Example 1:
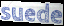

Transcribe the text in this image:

suede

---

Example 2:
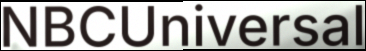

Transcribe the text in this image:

NBCUniversal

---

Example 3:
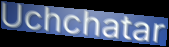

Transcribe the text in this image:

Uchchatar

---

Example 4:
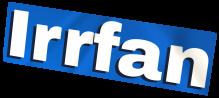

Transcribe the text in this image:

Irrfan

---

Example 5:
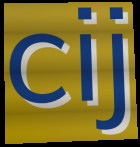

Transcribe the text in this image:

cij